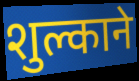
शुल्काने